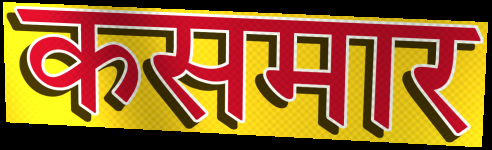
कसमार